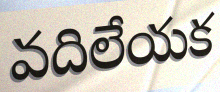
వదిలేయక